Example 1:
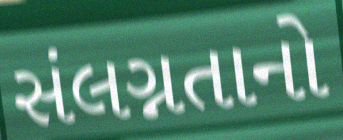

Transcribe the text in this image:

સંલગ્નતાનો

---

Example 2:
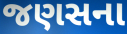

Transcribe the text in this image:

જણસના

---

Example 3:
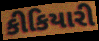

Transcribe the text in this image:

કીકિયારી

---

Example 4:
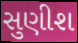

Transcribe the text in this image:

સુણીશ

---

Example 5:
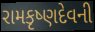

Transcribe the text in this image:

રામકૃષ્ણદેવની